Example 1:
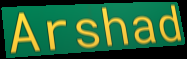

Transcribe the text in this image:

Arshad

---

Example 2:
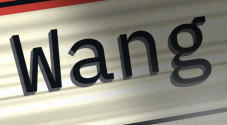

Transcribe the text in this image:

Wang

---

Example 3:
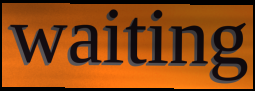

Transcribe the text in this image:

waiting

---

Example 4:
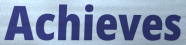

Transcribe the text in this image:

Achieves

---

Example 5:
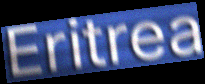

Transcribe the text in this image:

Eritrea